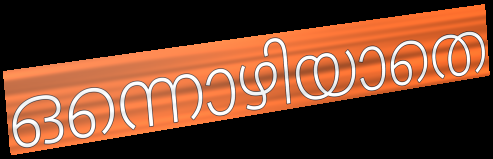
ഒന്നൊഴിയാതെ